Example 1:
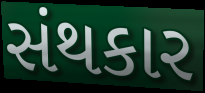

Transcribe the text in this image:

સંથકાર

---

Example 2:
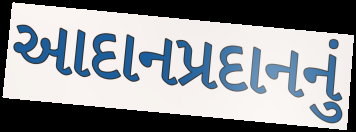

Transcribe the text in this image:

આદાનપ્રદાનનું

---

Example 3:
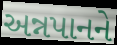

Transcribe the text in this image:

અન્નપાનને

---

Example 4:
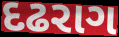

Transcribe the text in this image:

દઢરાગ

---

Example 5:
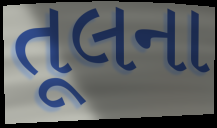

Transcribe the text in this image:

તૂલના